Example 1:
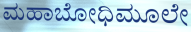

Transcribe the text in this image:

ಮಹಾಬೋಧಿಮೂಲೇ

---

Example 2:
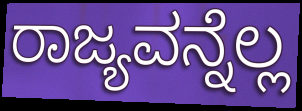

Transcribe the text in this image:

ರಾಜ್ಯವನ್ನೆಲ್ಲ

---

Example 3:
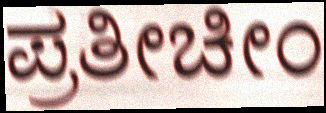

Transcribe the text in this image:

ಪ್ರತೀಚೀಂ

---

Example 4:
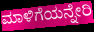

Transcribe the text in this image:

ಮಾಳಿಗೆಯನ್ನೇರಿ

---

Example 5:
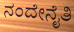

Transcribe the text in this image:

ನಂದೇನೈತಿ